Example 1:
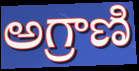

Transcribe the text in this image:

అగ్రాణి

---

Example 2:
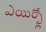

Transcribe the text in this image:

ఎయిర్ఫ్లో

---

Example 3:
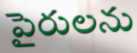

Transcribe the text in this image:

పైరులను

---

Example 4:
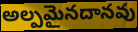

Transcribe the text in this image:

అల్పమైనదానవు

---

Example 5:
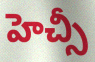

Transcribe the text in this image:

హెచ్సీ